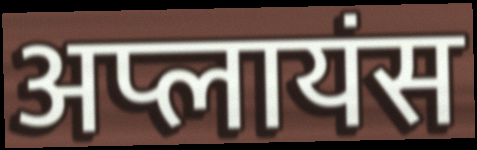
अप्लायंस